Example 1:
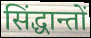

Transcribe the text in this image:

सिंद्धान्तों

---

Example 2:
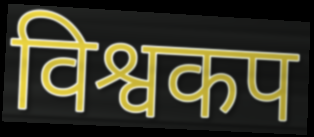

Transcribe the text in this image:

विश्वकप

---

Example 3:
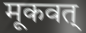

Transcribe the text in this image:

मूकवत्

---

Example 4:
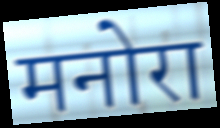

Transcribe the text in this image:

मनोरा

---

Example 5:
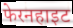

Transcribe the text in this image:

फेरनहाइट